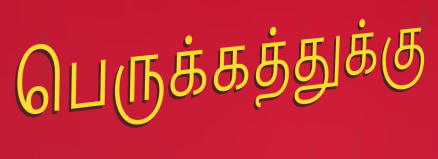
பெருக்கத்துக்கு